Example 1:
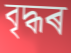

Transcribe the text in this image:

বৃদ্ধৰ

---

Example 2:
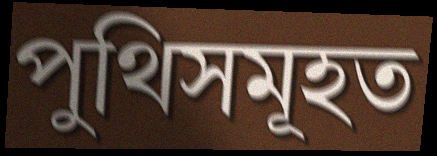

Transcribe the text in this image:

পুথিসমূহত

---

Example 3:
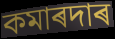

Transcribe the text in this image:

কমাৰদাৰ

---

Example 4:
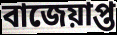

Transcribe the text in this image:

বাজেয়াপ্ত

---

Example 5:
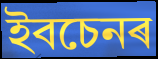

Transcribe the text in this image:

ইবচেনৰ